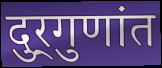
दुर्गुणांत